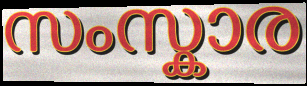
സംസ്കാര